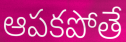
ఆపకపోతే